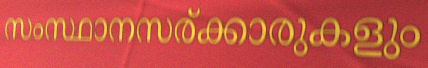
സംസ്ഥാനസര്ക്കാരുകളും